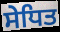
ਸੇਧਿਤ